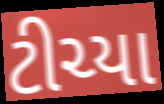
ટીચ્યા